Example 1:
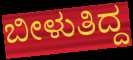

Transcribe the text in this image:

ಬೀಳುತಿದ್ದ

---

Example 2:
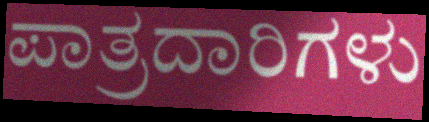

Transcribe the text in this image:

ಪಾತ್ರದಾರಿಗಳು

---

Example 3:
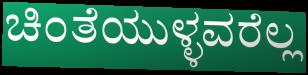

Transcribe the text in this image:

ಚಿಂತೆಯುಳ್ಳವರೆಲ್ಲ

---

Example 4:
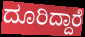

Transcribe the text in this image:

ದೂರಿದ್ದಾರೆ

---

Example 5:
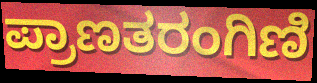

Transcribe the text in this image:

ಪ್ರಾಣತರಂಗಿಣಿ